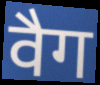
वैग